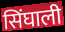
सिंघाली